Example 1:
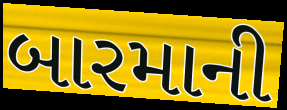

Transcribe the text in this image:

બારમાની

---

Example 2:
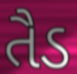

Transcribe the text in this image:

તૈડ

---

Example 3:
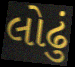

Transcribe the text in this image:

લોઢું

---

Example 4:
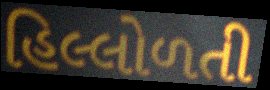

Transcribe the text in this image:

હિલ્લોળતી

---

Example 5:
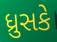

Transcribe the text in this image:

ધ્રુસકે